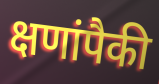
क्षणांपैकी